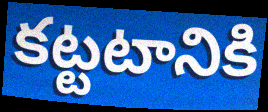
కట్టటానికి